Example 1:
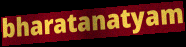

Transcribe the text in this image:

bharatanatyam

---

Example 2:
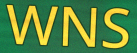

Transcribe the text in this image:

WNS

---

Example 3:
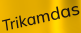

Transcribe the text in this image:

Trikamdas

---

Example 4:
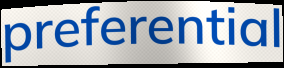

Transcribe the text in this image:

preferential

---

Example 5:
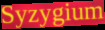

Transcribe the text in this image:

Syzygium